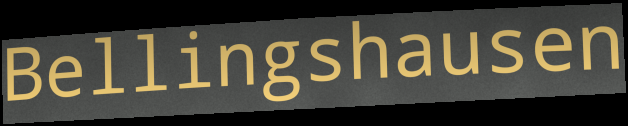
Bellingshausen